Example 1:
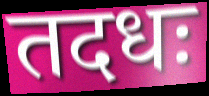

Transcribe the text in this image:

तदधः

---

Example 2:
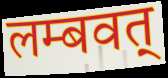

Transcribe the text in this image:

लम्बवत्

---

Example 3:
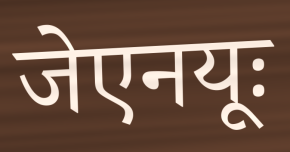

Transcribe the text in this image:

जेएनयूः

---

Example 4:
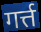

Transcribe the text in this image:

गर्त्त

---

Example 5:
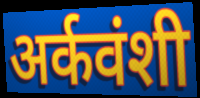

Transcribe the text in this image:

अर्कवंशी